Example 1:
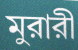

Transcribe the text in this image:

মুরারী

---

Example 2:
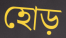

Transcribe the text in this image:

হোড়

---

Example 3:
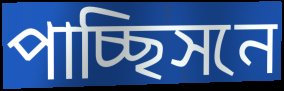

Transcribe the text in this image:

পাচ্ছিসনে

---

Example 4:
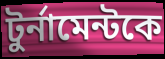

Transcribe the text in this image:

টুর্নামেন্টকে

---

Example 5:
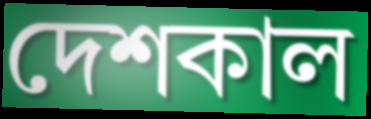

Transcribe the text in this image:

দেশকাল